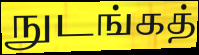
நுடங்கத்